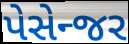
પેસેન્જર